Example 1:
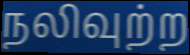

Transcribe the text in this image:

நலிவுற்ற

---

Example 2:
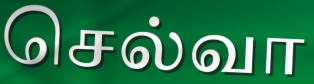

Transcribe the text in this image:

செல்வா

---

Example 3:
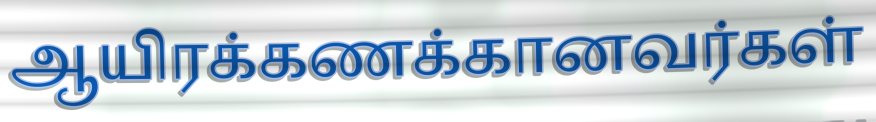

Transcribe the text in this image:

ஆயிரக்கணக்கானவர்கள்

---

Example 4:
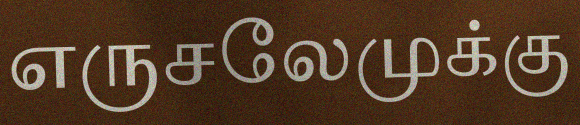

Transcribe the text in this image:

எருசலேமுக்கு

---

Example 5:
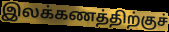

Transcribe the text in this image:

இலக்கணத்திற்குச்